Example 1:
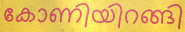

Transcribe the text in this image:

കോണിയിറങ്ങി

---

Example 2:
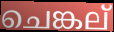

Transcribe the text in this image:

ചെങ്കല്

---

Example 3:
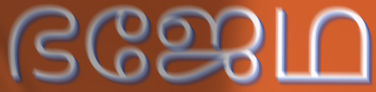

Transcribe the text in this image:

ഭജേഥ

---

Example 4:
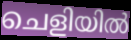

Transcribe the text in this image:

ചെളിയിൽ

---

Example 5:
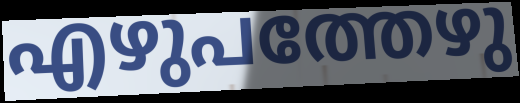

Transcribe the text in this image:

എഴുപത്തേഴു